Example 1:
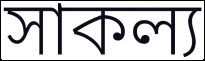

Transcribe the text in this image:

সাকল্য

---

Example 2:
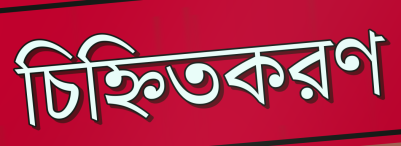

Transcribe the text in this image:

চিহ্নিতকরণ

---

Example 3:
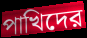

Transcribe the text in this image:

পাখিদের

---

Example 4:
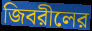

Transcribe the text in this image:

জিবরীলের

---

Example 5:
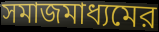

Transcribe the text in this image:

সমাজমাধ্যমের